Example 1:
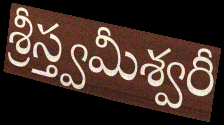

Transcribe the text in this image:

శ్రీస్త్వమీశ్వరీ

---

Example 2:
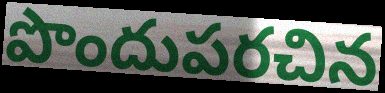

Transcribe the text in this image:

పొందుపరచిన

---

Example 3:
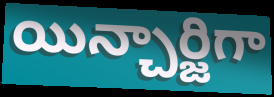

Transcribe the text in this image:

యిన్చార్జిగా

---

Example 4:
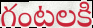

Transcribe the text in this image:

గంటలకి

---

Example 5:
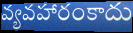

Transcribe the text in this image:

వ్యవహారంకాదు